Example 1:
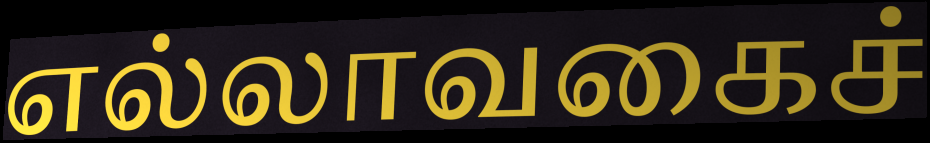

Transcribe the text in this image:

எல்லாவகைச்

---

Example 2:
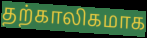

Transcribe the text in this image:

தற்காலிகமாக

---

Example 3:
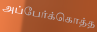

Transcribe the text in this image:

அப்பேர்க்கொத்த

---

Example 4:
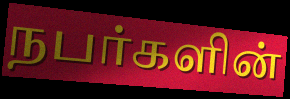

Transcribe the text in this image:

நபர்களின்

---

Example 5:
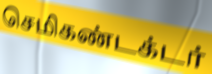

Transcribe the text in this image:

செமிகண்டக்டர்